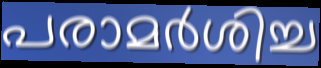
പരാമർശിച്ച